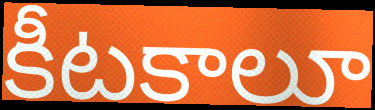
కీటకాలూ